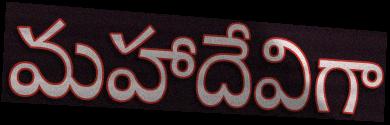
మహాదేవిగా